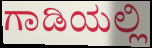
ಗಾಡಿಯಲ್ಲಿ